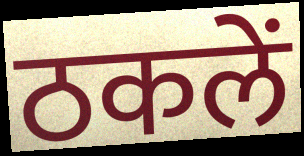
ठकलें